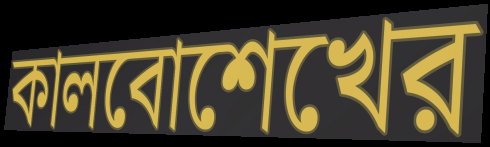
কালবোশেখের